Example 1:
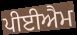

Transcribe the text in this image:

ਪੀਈਐਮ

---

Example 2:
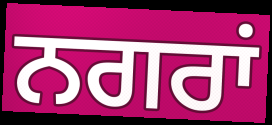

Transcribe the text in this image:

ਨਗਰਾਂ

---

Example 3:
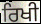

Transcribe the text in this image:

ਰਿਖੀ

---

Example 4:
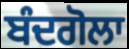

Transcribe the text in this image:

ਬੰਦਗੋਲਾ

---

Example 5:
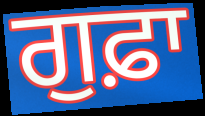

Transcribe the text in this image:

ਗੁਫ਼ਾ